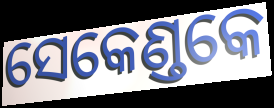
ସେକେଣ୍ଡକେ